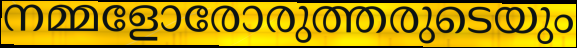
നമ്മളോരോരുത്തരുടെയും